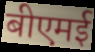
बीएमई